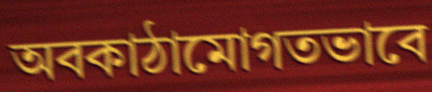
অবকাঠামোগতভাবে